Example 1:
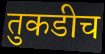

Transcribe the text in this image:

तुकडीच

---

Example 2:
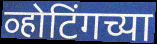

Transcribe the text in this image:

व्होटिंगच्या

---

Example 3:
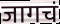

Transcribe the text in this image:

जागचं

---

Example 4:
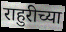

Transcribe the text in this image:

राहुरीच्या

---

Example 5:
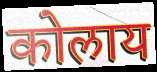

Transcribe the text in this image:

कोलाय